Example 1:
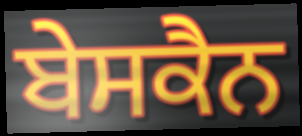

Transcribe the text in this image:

ਬੇਸਕੈਨ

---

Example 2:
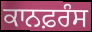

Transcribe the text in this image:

ਕਾਨਫ਼ਰੰਸ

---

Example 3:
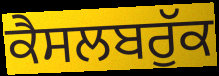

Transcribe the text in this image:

ਕੈਸਲਬਰੁੱਕ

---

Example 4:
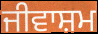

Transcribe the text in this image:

ਜੀਵਾਸ਼ਮ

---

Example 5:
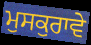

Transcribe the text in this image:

ਮੁਸਕੁਰਾਵੇ